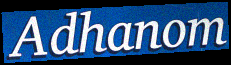
Adhanom